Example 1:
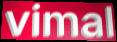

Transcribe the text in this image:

vimal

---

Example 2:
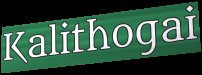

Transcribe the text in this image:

Kalithogai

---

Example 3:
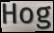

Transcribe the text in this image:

Hog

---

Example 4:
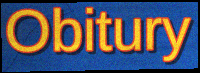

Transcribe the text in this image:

Obitury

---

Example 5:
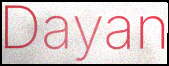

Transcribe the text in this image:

Dayan